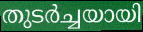
തുടർച്ചയായി